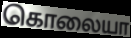
கொலையா